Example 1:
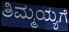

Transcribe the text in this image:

ತಿಮ್ಮಯ್ಯಗೆ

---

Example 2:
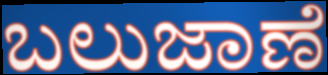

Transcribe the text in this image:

ಬಲುಜಾಣೆ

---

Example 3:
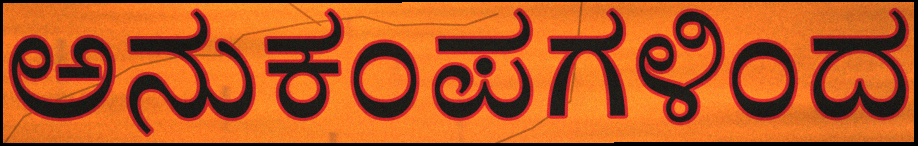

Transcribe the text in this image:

ಅನುಕಂಪಗಳಿಂದ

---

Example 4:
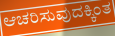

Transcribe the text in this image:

ಆಚರಿಸುವುದಕ್ಕಿಂತ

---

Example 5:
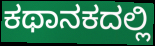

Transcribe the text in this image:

ಕಥಾನಕದಲ್ಲಿ